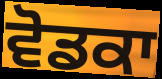
ਵੋਡਕਾ